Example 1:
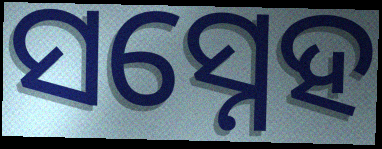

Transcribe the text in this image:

ସସ୍ନେହ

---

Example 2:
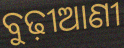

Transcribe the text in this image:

ବୁଢ଼ୀଆଣୀ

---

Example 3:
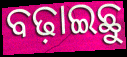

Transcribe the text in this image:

ବଢ଼ାଇଛୁ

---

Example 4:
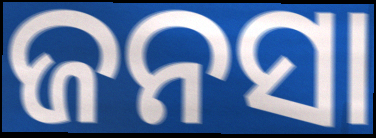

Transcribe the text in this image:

ଜନସା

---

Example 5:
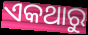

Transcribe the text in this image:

ଏକଥାରୁ